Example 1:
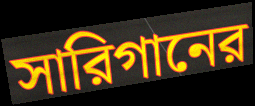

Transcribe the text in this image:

সারিগানের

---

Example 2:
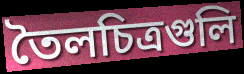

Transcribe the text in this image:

তৈলচিত্রগুলি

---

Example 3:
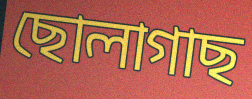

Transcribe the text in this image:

ছোলাগাছ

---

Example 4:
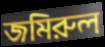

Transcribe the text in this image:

জমিরুল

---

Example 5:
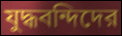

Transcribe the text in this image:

যুদ্ধবন্দিদের